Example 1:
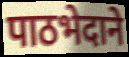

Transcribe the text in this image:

पाठभेदाने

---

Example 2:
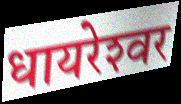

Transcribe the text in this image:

धायरेश्वर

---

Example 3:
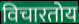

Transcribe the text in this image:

विचारतोय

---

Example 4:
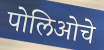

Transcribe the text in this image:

पोलिओचे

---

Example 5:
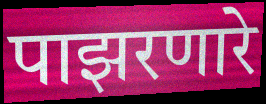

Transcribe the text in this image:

पाझरणारे